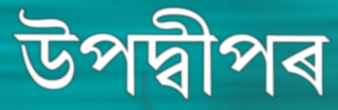
উপদ্বীপৰ